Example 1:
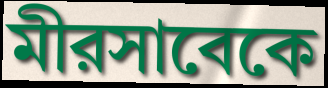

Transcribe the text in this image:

মীরসাবেকে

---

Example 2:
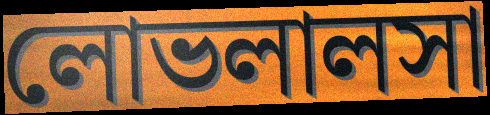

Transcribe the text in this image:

লোভলালসা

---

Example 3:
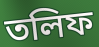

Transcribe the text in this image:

তলিফ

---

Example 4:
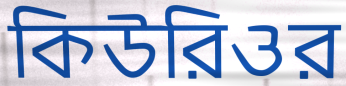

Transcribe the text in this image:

কিউরিওর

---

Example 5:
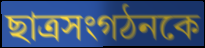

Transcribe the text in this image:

ছাত্রসংগঠনকে